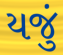
યજું